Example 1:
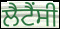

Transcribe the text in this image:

ਲੈਟੈਂਸੀ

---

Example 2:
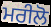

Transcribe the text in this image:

ਮਰੀਲੋ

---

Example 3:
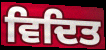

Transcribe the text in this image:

ਵਿਦਿਤ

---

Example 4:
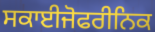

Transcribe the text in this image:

ਸਕਾਈਜੋਫਰੀਨਿਕ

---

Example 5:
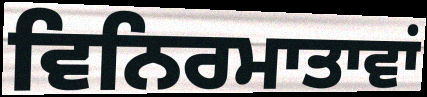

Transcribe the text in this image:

ਵਿਨਿਰਮਾਤਾਵਾਂ